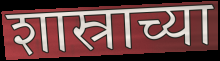
शास्राच्या